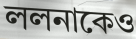
ললনাকেও